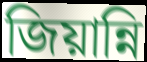
জিয়ান্নি